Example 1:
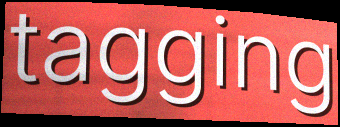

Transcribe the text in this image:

tagging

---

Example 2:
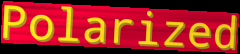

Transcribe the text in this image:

Polarized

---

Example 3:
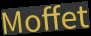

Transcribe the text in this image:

Moffet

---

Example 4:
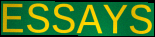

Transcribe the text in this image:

ESSAYS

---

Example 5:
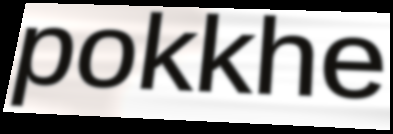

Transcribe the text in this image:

pokkhe